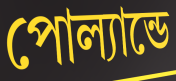
পোল্যান্ডে